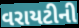
વરાયટીની